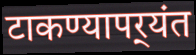
टाकण्यापर्यंत